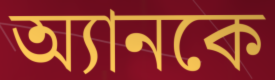
অ্যানকে